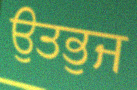
ਉਤਭੁਜ